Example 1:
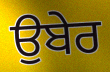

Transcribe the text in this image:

ਉਬੇਰ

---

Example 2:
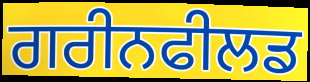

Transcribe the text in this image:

ਗਰੀਨਫੀਲਡ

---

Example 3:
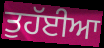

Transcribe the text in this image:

ਤੁਹੱਈਆ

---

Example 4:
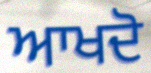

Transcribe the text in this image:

ਆਖਦੋ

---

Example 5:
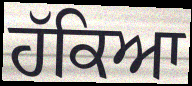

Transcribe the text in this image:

ਹੱਕਿਆ